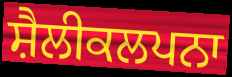
ਸ਼ੈਲੀਕਲਪਨਾ